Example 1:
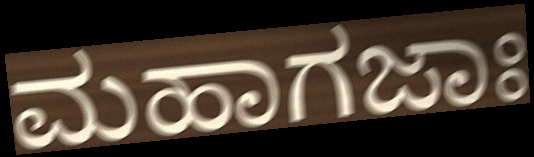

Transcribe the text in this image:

ಮಹಾಗಜಾಃ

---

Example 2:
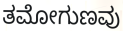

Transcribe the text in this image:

ತಮೋಗುಣವು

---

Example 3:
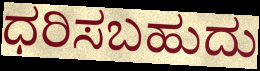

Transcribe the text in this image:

ಧರಿಸಬಹುದು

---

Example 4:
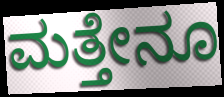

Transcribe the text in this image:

ಮತ್ತೇನೂ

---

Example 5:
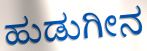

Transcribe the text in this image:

ಹುಡುಗೀನ